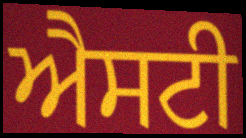
ਐਸਟੀ